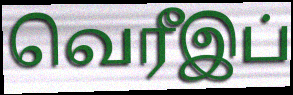
வெரீஇப்